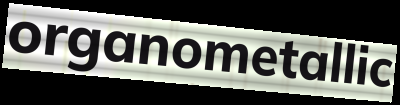
organometallic